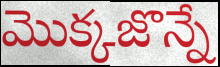
మొక్కజొన్నే